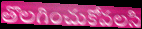
తొలగించుకోవలసి